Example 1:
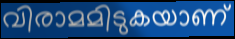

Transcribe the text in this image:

വിരാമമിടുകയാണ്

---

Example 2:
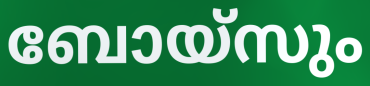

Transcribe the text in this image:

ബോയ്സും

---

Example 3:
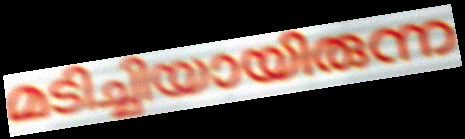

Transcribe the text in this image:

മടിച്ചിയായിരുന്ന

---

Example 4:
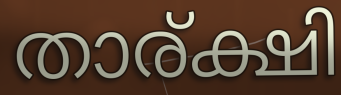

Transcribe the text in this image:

താര്ക്ഷി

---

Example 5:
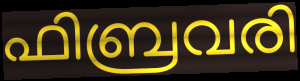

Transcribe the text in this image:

ഫിബ്രവരി